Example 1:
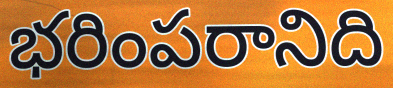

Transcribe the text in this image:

భరింపరానిది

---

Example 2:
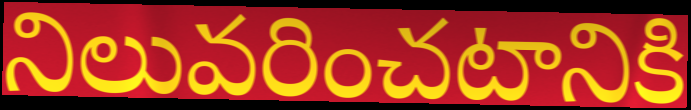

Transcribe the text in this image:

నిలువరించటానికి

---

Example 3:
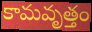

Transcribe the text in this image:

కామవృత్తం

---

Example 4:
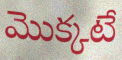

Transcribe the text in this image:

మొక్కటే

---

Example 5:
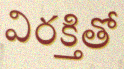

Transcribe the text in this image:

విరక్తితో